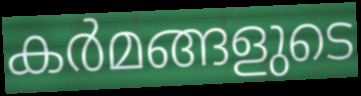
കർമങ്ങളുടെ